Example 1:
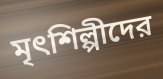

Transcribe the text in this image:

মৃৎশিল্পীদের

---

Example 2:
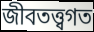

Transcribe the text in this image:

জীবতত্ত্বগত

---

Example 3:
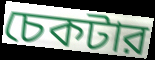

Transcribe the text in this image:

চেকটার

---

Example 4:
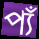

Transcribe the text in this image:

প্যঁ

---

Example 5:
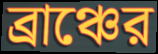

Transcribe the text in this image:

ব্রাঞ্চের